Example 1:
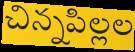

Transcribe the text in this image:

చిన్నపిల్లల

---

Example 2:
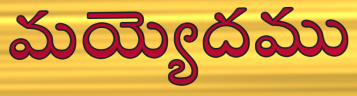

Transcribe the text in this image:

మయ్యెదము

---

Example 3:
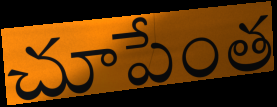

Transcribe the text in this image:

చూపేంత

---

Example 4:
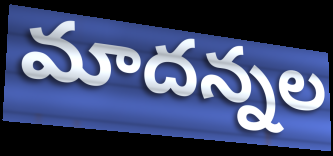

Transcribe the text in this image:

మాదన్నల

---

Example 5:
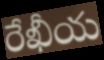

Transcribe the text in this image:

రేఖీయ